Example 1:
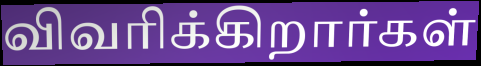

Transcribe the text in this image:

விவரிக்கிறார்கள்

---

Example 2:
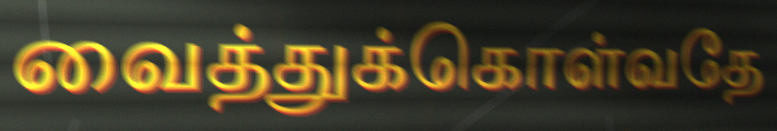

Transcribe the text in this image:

வைத்துக்கொள்வதே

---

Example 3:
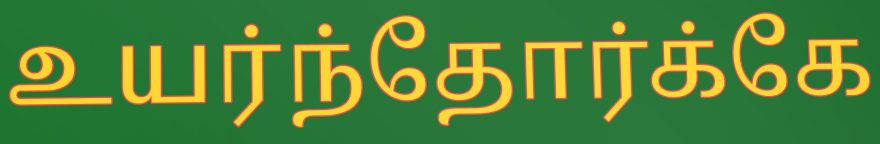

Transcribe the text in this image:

உயர்ந்தோர்க்கே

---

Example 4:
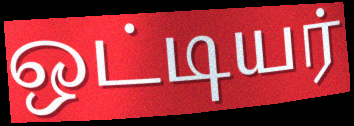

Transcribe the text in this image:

ஒட்டியர்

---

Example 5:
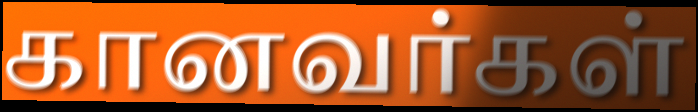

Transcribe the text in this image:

கானவர்கள்